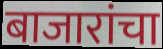
बाजारांचा